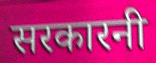
सरकारनी